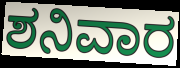
ಶನಿವಾರ